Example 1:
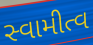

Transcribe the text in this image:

સ્વામીત્વ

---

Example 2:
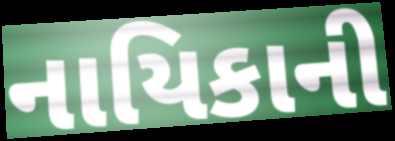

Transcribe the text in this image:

નાયિકાની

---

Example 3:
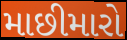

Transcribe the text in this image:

માછીમારો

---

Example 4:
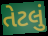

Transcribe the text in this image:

તેટલું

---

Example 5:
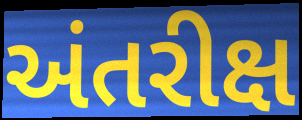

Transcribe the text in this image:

અંતરીક્ષ